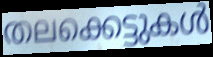
തലക്കെട്ടുകൾ